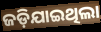
ଜଡ଼ିଯାଇଥିଲା